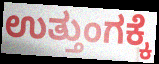
ಉತ್ತುಂಗಕ್ಕೆ